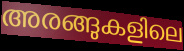
അരങ്ങുകളിലെ